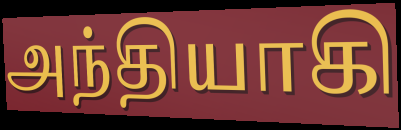
அந்தியாகி